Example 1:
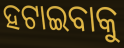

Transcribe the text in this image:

ହଟାଇବାକୁ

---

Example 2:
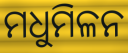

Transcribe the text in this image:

ମଧୁମିଳନ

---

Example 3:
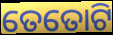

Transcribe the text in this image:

ତେତୋଟି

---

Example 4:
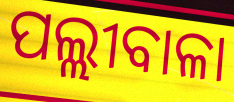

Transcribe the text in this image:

ପଲ୍ଲୀବାଳା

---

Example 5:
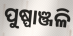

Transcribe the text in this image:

ପୁଷ୍ପାଞ୍ଜଳି